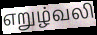
எறுழ்வலி